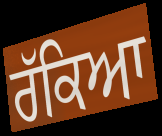
ਰੱਕਿਆ